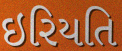
ઇરિયતિ